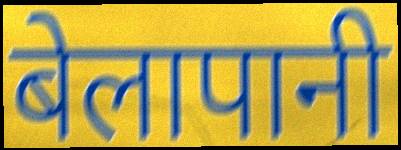
बेलापानी